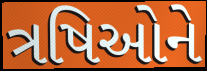
ત્રષિઓને